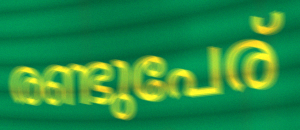
രണ്ടുപേര്